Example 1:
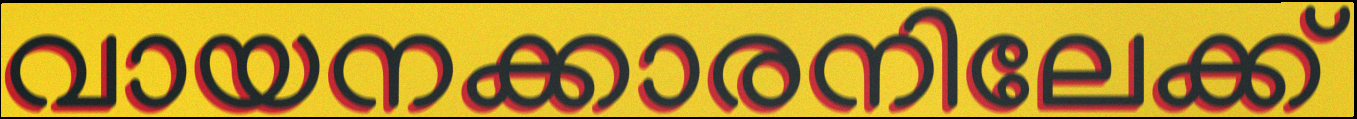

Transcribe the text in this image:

വായനക്കാരനിലേക്ക്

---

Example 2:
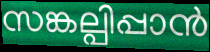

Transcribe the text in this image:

സങ്കല്പിപ്പാൻ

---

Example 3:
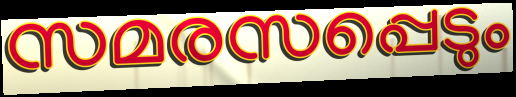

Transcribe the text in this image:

സമരസപ്പെടും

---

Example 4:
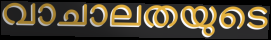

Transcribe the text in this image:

വാചാലതയുടെ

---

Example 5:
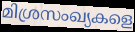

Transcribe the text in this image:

മിശ്രസംഖ്യകളെ